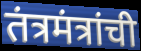
तंत्रमंत्रांची